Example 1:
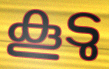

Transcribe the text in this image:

കൂടു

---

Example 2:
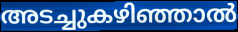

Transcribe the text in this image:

അടച്ചുകഴിഞ്ഞാൽ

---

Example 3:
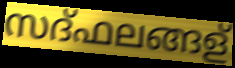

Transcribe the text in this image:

സദ്ഫലങ്ങള്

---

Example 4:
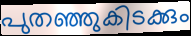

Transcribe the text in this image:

പുതഞ്ഞുകിടക്കും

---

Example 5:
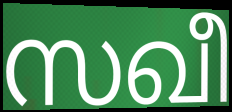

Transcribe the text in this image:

സഖീ